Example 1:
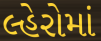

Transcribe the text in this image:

લ્હેરોમાં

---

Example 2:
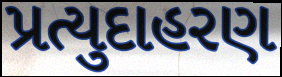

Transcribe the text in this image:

પ્રત્યુદાહરણ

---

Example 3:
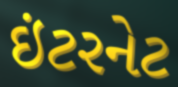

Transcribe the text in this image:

ઇંટરનેટ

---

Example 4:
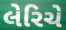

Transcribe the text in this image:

લેરિચે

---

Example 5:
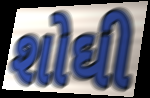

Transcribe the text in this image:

શોઘી